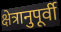
क्षेत्रानुपूर्वी